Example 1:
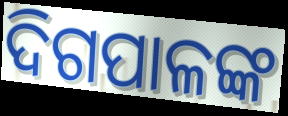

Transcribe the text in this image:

ଦିଗପାଳଙ୍କ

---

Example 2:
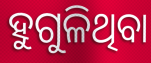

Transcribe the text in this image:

ହୁଗୁଳିଥିବା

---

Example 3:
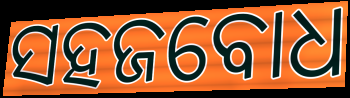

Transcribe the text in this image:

ସହଜବୋଧ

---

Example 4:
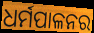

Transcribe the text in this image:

ଧର୍ମପାଳନର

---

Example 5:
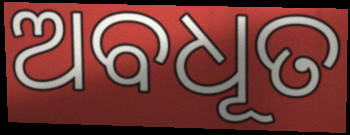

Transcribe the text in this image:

ଅବଧୂତ